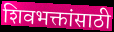
शिवभक्तांसाठी